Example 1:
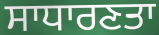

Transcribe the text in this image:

ਸਾਧਾਰਣਤਾ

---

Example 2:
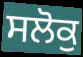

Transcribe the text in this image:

ਸਲੋਕੁ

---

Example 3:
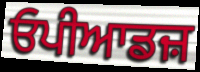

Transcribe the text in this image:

ਓਪੀਆਡਜ਼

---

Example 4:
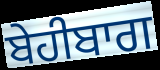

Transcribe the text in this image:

ਬੇਹੀਬਾਗ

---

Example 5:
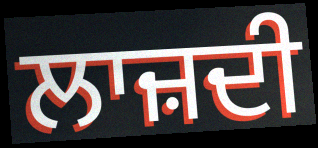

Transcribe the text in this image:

ਲਾਜ਼ਦੀ